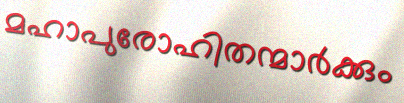
മഹാപുരോഹിതന്മാർക്കും